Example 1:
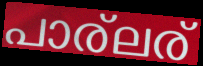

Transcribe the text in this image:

പാര്ലര്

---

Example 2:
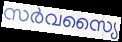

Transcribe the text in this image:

സർവസ്യൈ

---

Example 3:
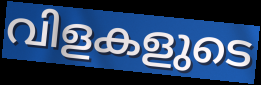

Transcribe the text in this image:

വിളകളുടെ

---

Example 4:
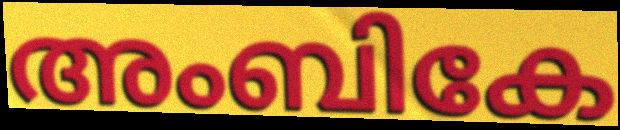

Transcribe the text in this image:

അംബികേ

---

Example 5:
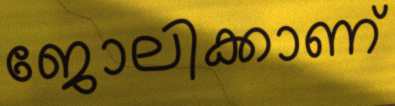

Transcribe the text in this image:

ജോലിക്കാണ്